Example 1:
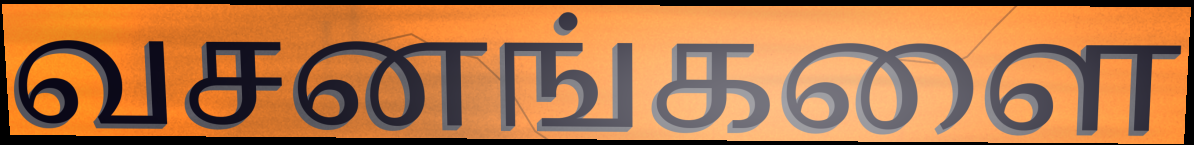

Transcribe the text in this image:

வசனங்களை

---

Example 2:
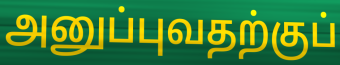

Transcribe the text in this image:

அனுப்புவதற்குப்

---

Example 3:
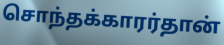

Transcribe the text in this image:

சொந்தக்காரர்தான்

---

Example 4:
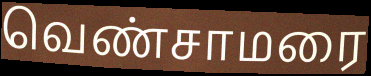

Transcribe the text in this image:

வெண்சாமரை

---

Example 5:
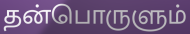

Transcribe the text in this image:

தன்பொருளும்